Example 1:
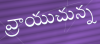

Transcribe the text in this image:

వ్రాయుచున్న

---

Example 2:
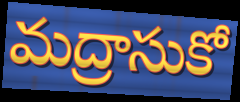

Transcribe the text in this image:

మద్రాసుకో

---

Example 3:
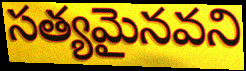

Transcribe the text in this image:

సత్యమైనవని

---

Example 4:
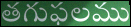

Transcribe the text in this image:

తగుఫలము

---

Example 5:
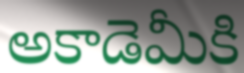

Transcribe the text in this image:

అకాడెమీకి